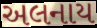
અલનાય